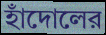
হাঁদোলের